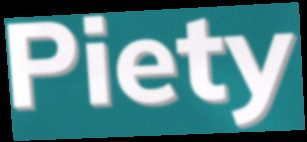
Piety